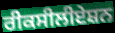
ਰੀਕਸੀਲੀਏਸ਼ਨ